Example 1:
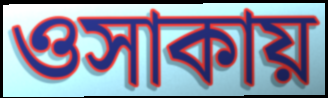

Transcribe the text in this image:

ওসাকায়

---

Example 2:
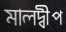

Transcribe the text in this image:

মালদ্বীপ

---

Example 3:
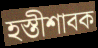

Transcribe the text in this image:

হস্তীশাবক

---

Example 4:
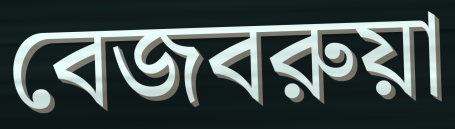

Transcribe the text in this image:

বেজবরুয়া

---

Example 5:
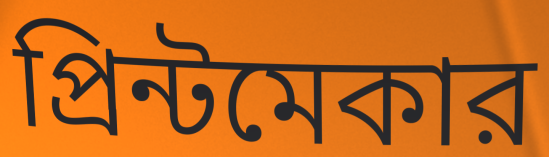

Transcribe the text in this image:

প্রিন্টমেকার